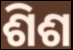
ଶିଶ